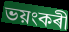
ভয়ংকৰী